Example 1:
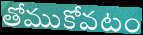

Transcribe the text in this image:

తోముకోవటం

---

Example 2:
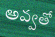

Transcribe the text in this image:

అవ్వతో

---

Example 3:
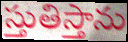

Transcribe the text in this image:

స్తుతిస్తాను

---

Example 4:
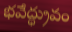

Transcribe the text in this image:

భవేద్ధ్రువం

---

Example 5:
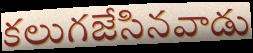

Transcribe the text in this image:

కలుగజేసినవాడు